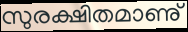
സുരക്ഷിതമാണു്